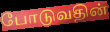
போடுவதின்